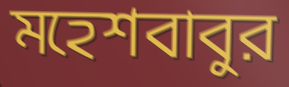
মহেশবাবুর